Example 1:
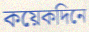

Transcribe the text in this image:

কয়েকদিনে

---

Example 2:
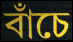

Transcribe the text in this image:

বাঁচে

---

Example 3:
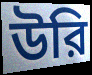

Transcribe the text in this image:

উরি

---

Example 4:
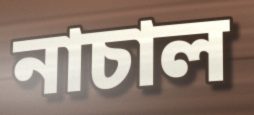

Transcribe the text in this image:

নাচাল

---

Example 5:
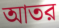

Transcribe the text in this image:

আতর